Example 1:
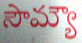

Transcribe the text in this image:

సౌమ్యౌ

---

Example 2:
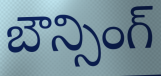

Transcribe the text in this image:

బౌన్సింగ్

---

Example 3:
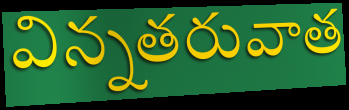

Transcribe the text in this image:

విన్నతరువాత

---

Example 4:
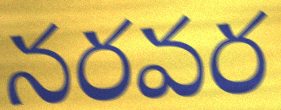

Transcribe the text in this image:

నరవర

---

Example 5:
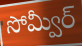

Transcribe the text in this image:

సోమ్వీర్